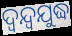
ଦ୍ୱନ୍ଦ୍ୱଯୁଦ୍ଧ